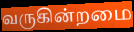
வருகின்றமை